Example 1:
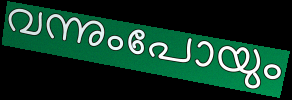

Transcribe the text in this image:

വന്നുംപോയും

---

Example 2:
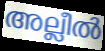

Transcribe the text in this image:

അല്ലീൽ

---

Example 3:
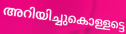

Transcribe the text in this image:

അറിയിച്ചുകൊള്ളട്ടെ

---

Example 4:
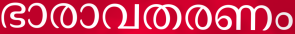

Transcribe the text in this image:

ഭാരാവതരണം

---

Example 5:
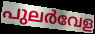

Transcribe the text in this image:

പുലർവേള